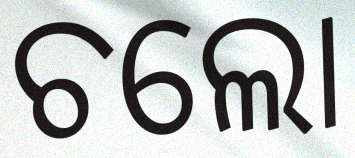
ଚଲୋ